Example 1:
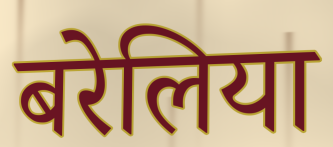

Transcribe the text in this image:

बरेलिया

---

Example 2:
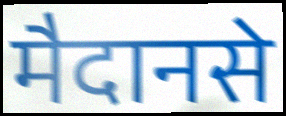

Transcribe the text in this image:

मैदानसे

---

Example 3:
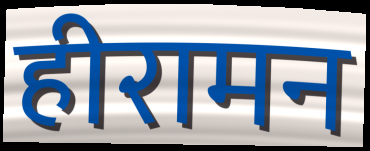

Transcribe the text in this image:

हीरामन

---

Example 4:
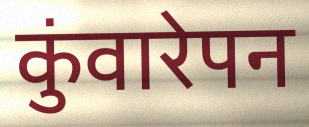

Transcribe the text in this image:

कुंवारेपन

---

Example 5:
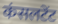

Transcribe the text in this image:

कंसलटेंट